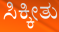
ಸಿಕ್ಕೀತು